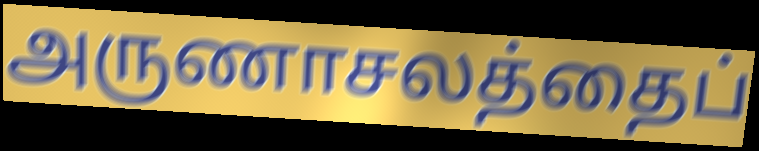
அருணாசலத்தைப்